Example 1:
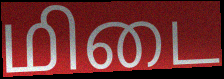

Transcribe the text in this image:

மிடை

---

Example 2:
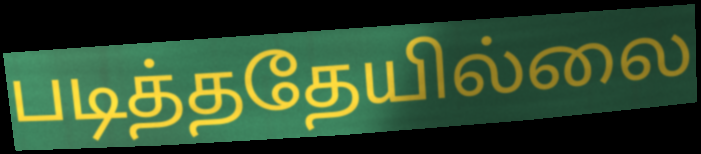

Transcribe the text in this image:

படித்ததேயில்லை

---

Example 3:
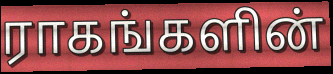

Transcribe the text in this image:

ராகங்களின்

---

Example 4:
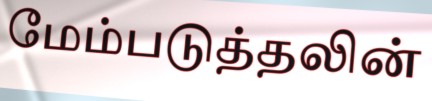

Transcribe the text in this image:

மேம்படுத்தலின்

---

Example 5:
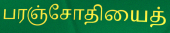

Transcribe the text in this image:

பரஞ்சோதியைத்